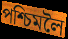
পশ্চিমলৈ